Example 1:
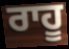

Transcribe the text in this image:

ਰਾਹੂ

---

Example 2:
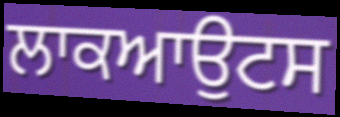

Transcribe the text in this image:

ਲਾਕਆਉਟਸ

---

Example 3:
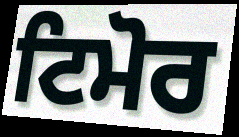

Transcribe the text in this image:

ਟਿਮੋਰ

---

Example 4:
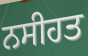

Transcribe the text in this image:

ਨਸੀਹਤ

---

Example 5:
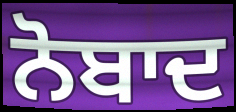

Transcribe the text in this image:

ਨੋਬਾਦ